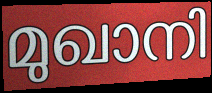
മുഖാനി